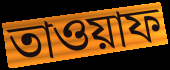
তাওয়াফ